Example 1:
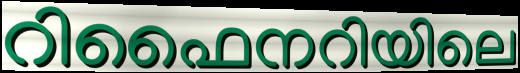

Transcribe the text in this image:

റിഫൈനറിയിലെ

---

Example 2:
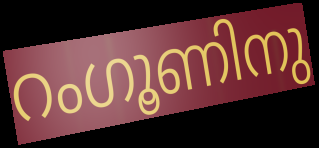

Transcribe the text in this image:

റംഗൂണിനു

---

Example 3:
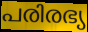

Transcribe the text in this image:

പരിരഭ്യ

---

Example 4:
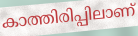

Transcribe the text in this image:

കാത്തിരിപ്പിലാണ്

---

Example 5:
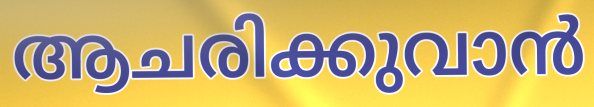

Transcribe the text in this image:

ആചരിക്കുവാൻ